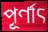
পূর্ণাৎ